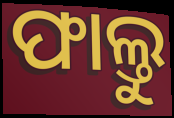
ଫାଲ୍ତୁ